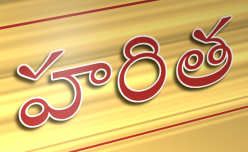
హరిత